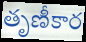
తృణీకార